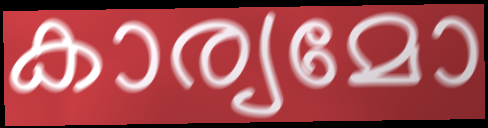
കാര്യമോ